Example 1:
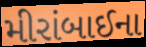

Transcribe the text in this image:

મીરાંબાઈના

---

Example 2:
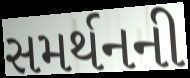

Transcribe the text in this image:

સમર્થનની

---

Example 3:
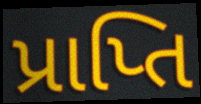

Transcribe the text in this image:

પ્રાપ્તિ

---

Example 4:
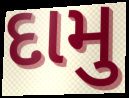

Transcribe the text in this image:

દામુ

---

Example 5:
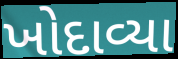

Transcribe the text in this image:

ખોદાવ્યા